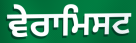
ਵੇਰਾਮਿਸਟ